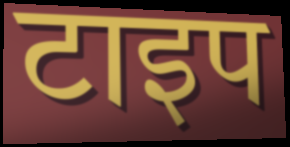
टाइप